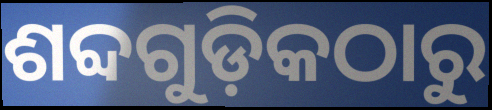
ଶବ୍ଦଗୁଡ଼ିକଠାରୁ